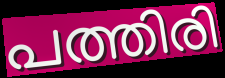
പത്തിരി